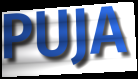
PUJA